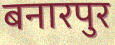
बनारपुर